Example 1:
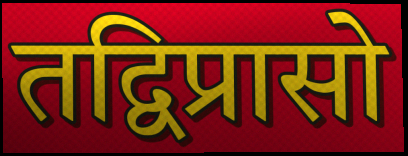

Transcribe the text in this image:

तद्विप्रासो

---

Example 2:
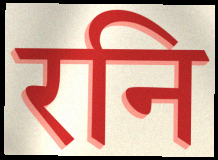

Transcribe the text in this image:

रनि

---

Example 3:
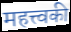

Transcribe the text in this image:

महत्त्वकी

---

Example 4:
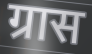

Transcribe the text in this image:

ग्रास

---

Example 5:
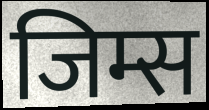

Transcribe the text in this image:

जिम्स